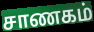
சாணகம்